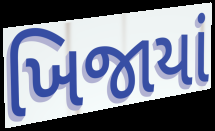
ખિજાયાં